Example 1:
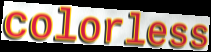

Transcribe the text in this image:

colorless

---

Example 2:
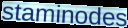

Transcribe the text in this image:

staminodes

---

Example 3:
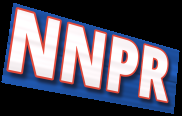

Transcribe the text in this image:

NNPR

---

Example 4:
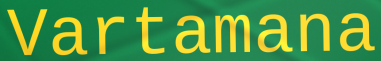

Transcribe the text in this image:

Vartamana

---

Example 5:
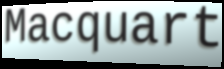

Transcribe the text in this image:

Macquart